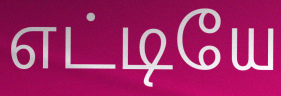
எட்டியே